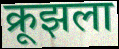
क्रूझला